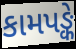
કામપઙ્કે